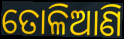
ତୋଳିଆଣି